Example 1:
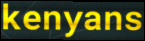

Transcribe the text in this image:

kenyans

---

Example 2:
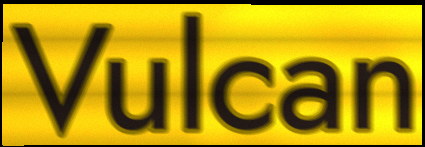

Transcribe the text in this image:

Vulcan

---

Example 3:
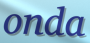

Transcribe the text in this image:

onda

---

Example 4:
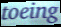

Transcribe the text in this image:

toeing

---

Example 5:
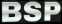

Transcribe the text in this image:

BSP